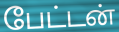
பேட்டன்